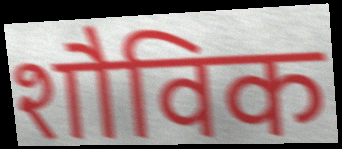
शौविक